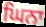
ਘਿਨਾ